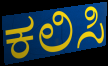
ಕಲಿಸಿ